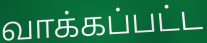
வாக்கப்பட்ட